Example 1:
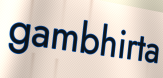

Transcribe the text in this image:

gambhirta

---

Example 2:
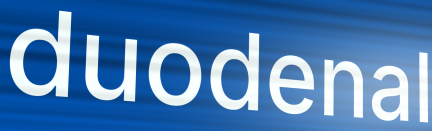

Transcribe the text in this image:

duodenal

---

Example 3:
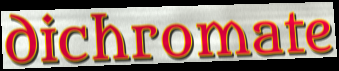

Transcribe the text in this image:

dichromate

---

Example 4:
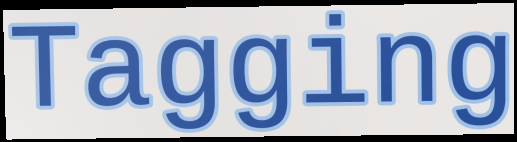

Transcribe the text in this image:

Tagging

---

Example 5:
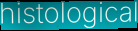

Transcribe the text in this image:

histological